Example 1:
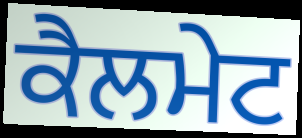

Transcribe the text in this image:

ਕੈਲਮੇਟ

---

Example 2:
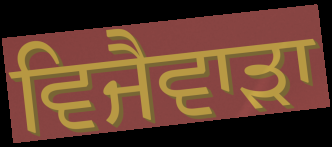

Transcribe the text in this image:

ਵਿਜੈਵਾੜਾ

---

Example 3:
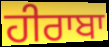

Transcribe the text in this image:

ਹੀਰਾਬਾ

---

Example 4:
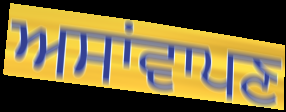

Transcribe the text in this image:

ਅਸਾਂਵਾਪਣ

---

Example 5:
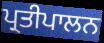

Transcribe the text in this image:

ਪ੍ਰਤੀਪਾਲਨ